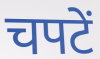
चपटें